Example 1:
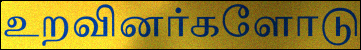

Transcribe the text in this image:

உறவினர்களோடு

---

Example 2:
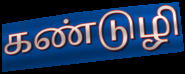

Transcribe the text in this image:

கண்டுழி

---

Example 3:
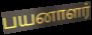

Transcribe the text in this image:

பயனாளர்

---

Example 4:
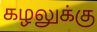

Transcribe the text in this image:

கழலுக்கு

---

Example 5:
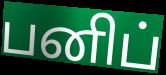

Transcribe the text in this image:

பனிப்